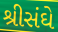
શ્રીસંઘે